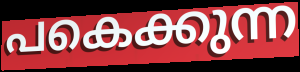
പകെക്കുന്ന